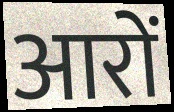
आरों